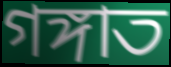
গঙ্গাত